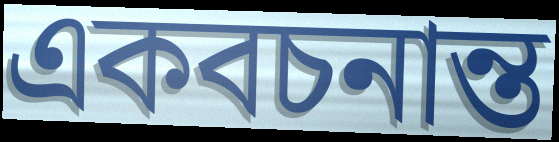
একবচনান্ত